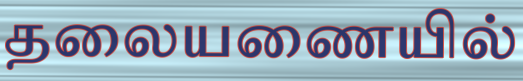
தலையணையில்